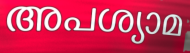
അപശ്യാമ